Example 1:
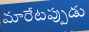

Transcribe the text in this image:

మారేటప్పుడు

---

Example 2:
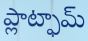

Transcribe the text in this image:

ప్లాట్ఫామ్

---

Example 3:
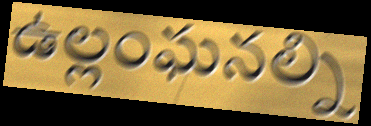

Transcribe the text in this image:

ఉల్లంఘనల్ని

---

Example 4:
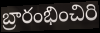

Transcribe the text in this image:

బ్రారంభించిరి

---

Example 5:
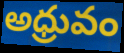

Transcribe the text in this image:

అధ్రువం